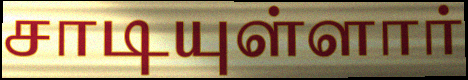
சாடியுள்ளார்